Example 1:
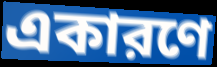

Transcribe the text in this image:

একারণে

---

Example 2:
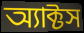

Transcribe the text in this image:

অ্যাক্টস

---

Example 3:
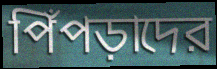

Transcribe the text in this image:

পিঁপড়াদের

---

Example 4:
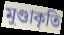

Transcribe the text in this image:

মুণ্ডাকৃতি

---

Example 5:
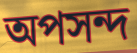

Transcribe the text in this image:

অপসন্দ